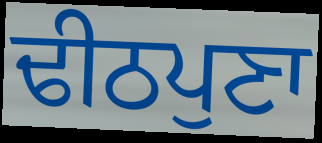
ਢੀਠਪੁਣਾ